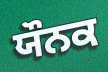
ਯੌਨਕ